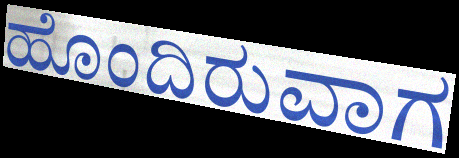
ಹೊಂದಿರುವಾಗ